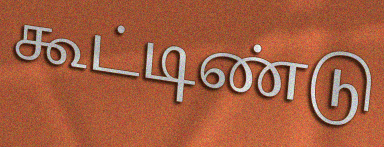
கூட்டிண்டு